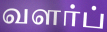
வளர்ப்